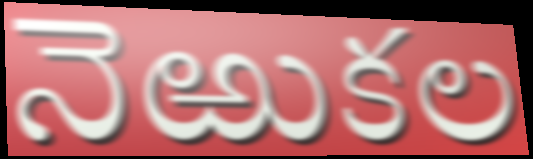
నెఱుకల